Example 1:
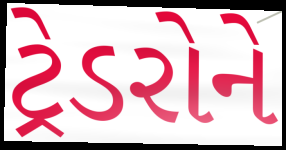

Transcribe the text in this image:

ટ્રેડરોને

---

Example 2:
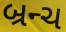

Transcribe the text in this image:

બ્રન્ચ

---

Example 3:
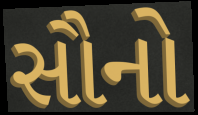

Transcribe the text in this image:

સૌનો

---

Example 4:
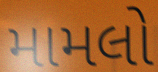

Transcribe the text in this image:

મામલો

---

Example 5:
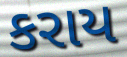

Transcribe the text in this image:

કરાય